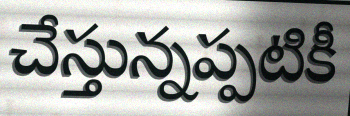
చేస్తున్నప్పటికీ